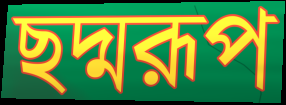
ছদ্মরূপ